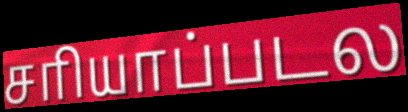
சரியாப்படல